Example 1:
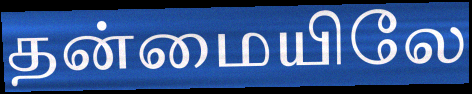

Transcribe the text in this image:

தன்மையிலே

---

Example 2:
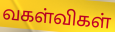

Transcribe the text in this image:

வகள்விகள்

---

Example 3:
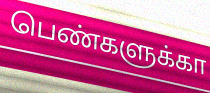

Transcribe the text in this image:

பெண்களுக்கா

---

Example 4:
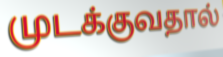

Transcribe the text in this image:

முடக்குவதால்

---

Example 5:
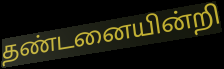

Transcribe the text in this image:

தண்டனையின்றி